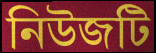
নিউজটি